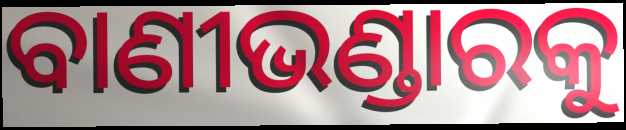
ବାଣୀଭଣ୍ଡାରକୁ